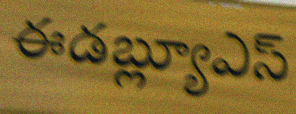
ఈడబ్ల్యూఎస్